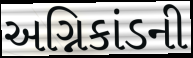
અગ્નિકાંડની